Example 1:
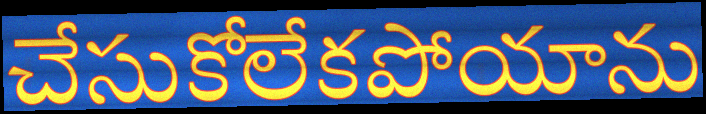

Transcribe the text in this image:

చేసుకోలేకపోయాను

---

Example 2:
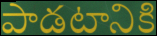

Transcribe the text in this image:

పాడటానికి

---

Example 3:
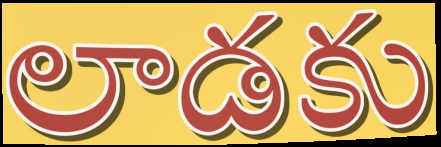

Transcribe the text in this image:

లాడకు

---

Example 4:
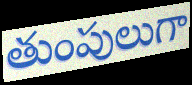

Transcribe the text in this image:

తుంపులుగా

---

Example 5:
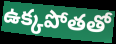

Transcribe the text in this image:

ఉక్కపోతతో